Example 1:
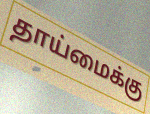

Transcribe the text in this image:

தாய்மைக்கு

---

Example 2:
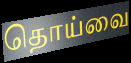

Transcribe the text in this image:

தொய்வை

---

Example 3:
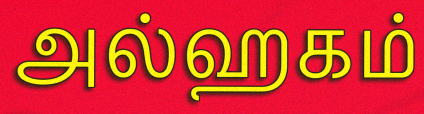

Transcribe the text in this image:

அல்ஹகம்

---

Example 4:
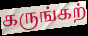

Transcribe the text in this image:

கருங்கற்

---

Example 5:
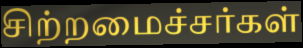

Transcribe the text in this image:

சிற்றமைச்சர்கள்